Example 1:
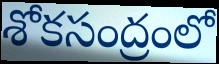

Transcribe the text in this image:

శోకసంద్రంలో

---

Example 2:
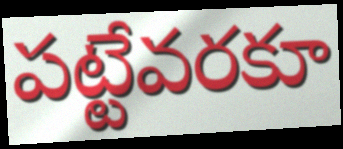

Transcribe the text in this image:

పట్టేవరకూ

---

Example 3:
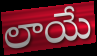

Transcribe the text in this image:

లాయే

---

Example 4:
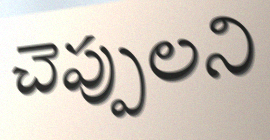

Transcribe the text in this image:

చెప్పులని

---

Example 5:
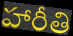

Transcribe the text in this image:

హారీతి